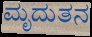
ಮೃದುತನ